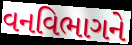
વનવિભાગને